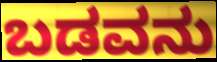
ಬಡವನು